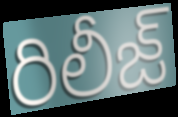
రిలీజ్